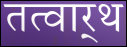
तत्वार्थ